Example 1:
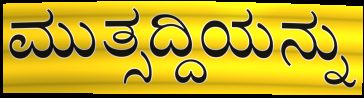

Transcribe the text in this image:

ಮುತ್ಸದ್ದಿಯನ್ನು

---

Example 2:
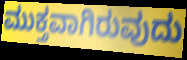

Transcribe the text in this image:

ಮುಕ್ತವಾಗಿರುವುದು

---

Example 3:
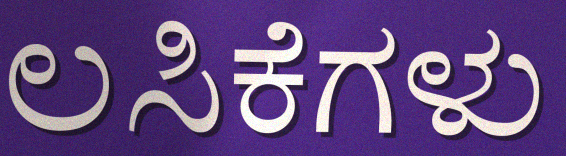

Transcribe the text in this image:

ಲಸಿಕೆಗಳು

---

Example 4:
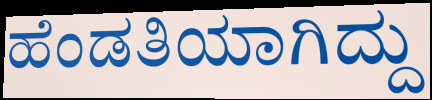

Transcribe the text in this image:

ಹೆಂಡತಿಯಾಗಿದ್ದು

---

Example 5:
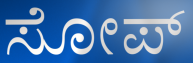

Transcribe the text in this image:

ಸೋಪ್